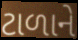
ટાળાને